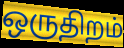
ஒருதிறம்